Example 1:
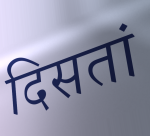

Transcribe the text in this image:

दिसतां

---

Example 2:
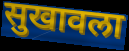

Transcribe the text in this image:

सुखावला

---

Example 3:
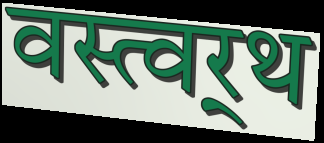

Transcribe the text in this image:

वस्त्वर्थ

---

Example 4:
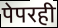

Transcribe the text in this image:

पेपरही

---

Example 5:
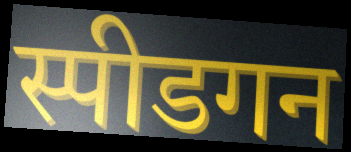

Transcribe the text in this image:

स्पीडगन